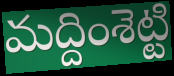
మద్దింశెట్టి